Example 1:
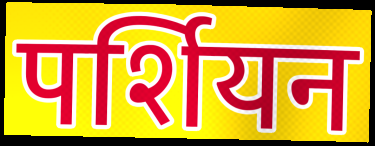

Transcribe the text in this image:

पर्शियन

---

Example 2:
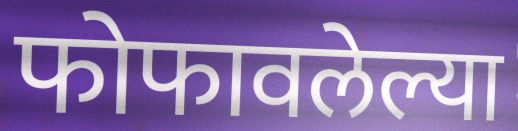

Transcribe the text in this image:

फोफावलेल्या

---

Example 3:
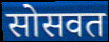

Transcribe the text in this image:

सोसवत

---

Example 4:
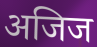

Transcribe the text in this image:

अजिज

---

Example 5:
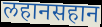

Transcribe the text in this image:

लहानसहान